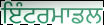
ਇੰਟਰਮਾਡਲ